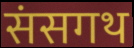
संसगथ